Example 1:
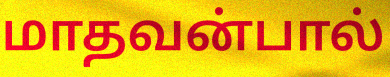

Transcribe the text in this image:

மாதவன்பால்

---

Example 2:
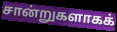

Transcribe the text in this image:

சான்றுகளாகக்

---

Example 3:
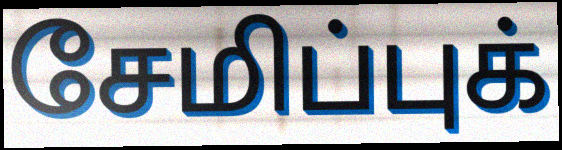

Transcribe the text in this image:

சேமிப்புக்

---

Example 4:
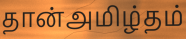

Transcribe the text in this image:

தான்அமிழ்தம்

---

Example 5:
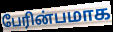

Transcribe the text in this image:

பேரின்பமாக